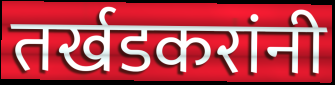
तर्खडकरांनी